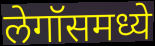
लेगॉसमध्ये